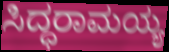
ಸಿದ್ಧರಾಮಯ್ಯ